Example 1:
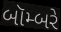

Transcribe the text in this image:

બૉમ્બરે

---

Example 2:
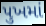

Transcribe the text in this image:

પુખમાં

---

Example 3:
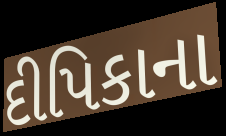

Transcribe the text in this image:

દીપિકાના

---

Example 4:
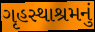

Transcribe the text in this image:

ગૃહસ્થાશ્રમનું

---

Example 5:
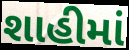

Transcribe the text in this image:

શાહીમાં